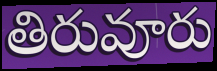
తిరువూరు